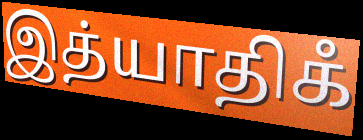
இத்யாதிகஂ